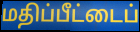
மதிப்பீட்டைப்